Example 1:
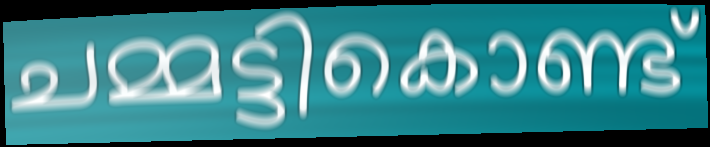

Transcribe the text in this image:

ചമ്മട്ടികൊണ്ട്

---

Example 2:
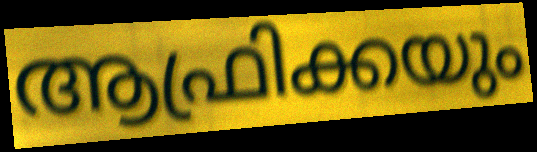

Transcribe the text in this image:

ആഫ്രിക്കയും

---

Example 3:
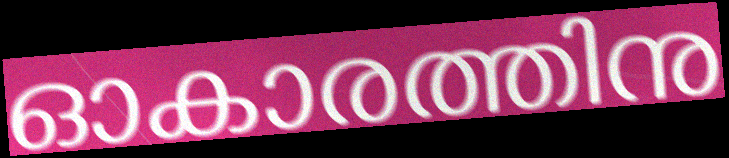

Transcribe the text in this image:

ഓകാരത്തിനു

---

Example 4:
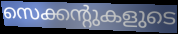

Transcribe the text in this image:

സെക്കന്റുകളുടെ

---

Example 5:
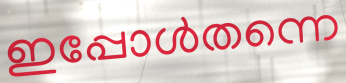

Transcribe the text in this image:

ഇപ്പോൾതന്നെ